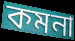
কমনা